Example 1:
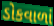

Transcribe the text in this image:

ડોકવાળાં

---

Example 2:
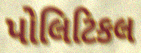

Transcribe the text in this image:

પોલિટિકલ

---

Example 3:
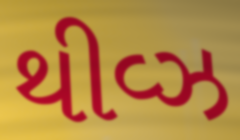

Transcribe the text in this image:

થીવ્ઝ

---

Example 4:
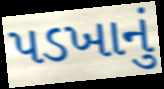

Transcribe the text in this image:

પડખાનું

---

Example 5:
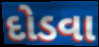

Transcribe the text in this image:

દોડવા